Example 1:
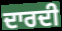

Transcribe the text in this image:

ਦਾਰਦੀ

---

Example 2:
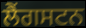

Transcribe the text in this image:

ਲੈਂਗਸਟਨ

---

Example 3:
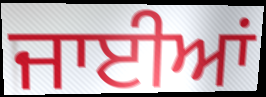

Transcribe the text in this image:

ਜਾਈਆਂ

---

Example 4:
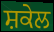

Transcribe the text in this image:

ਸ਼ਕੇਲ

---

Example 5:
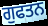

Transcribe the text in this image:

ਗੁਫਤਨ